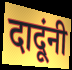
दादूंनी